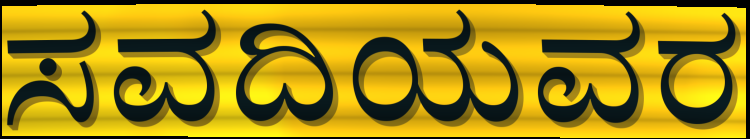
ಸವದಿಯವರ